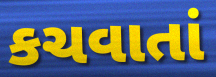
કચવાતાં